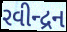
રવીન્દ્રન